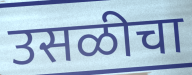
उसळीचा